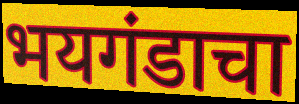
भयगंडाचा